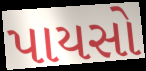
પાયસો